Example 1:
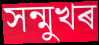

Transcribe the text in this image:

সন্মুখৰ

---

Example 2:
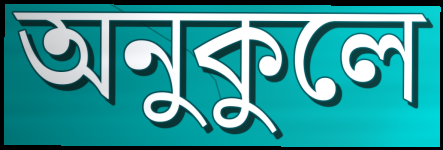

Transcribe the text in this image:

অনুকুলে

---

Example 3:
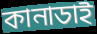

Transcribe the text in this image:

কানাডাই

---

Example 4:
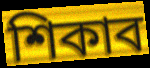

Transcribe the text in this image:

শিকাব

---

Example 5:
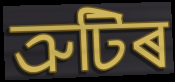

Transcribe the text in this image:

ত্ৰুটিৰ